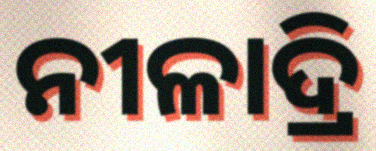
ନୀଳାଦ୍ରି